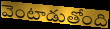
వెంటాడుతోంది